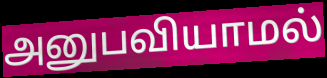
அனுபவியாமல்